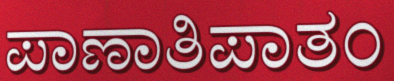
ಪಾಣಾತಿಪಾತಂ